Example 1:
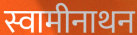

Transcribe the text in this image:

स्वामीनाथन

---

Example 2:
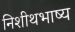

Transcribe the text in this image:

निशीथभाष्य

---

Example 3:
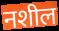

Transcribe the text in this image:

नशील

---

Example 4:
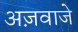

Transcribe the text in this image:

अज़वाजे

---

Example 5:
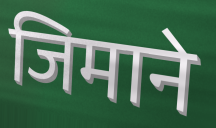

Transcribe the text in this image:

जिमाने